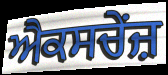
ਐਕਸਚੇਂਜ਼